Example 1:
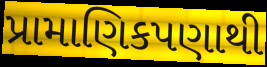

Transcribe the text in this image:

પ્રામાણિકપણાથી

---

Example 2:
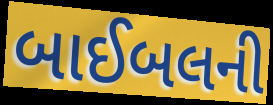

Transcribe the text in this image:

બાઈબલની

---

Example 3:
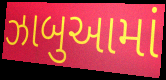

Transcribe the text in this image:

ઝાબુઆમાં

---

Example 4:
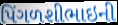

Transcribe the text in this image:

પિંગળશીભાઇની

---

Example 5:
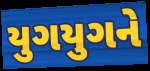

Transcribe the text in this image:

યુગયુગને